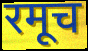
रमूच